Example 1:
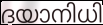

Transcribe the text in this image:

ദയാനിധി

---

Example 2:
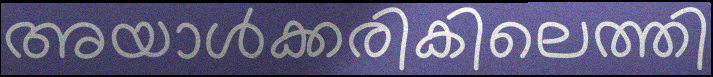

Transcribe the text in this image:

അയാൾക്കരികിലെത്തി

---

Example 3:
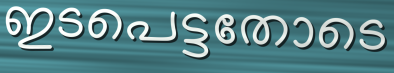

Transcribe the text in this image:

ഇടപെട്ടതോടെ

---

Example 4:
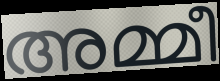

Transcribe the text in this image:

അമ്മീ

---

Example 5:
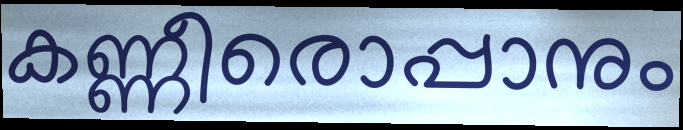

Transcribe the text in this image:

കണ്ണീരൊപ്പാനും